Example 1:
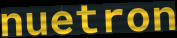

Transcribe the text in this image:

nuetron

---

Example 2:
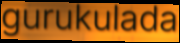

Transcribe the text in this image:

gurukulada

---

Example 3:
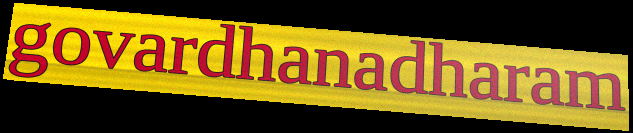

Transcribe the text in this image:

govardhanadharam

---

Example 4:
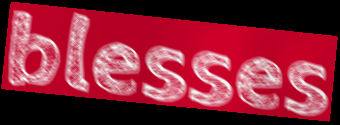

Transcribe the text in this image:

blesses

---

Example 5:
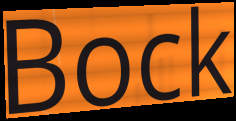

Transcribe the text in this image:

Bock